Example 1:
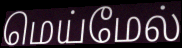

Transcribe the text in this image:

மெய்மேல்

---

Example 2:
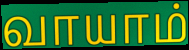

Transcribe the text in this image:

வாயாம்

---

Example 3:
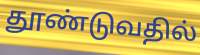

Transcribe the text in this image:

தூண்டுவதில்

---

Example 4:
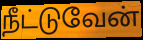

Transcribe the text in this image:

நீட்டுவேன்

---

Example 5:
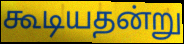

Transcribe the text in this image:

கூடியதன்று